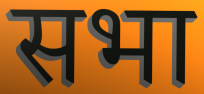
सभा